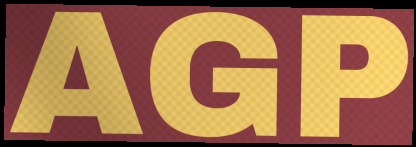
AGP